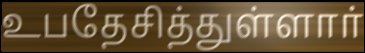
உபதேசித்துள்ளார்